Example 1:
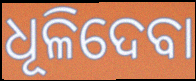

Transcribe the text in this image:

ଧୂଳିଦେବା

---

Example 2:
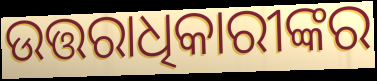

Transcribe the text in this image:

ଉତ୍ତରାଧିକାରୀଙ୍କର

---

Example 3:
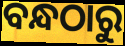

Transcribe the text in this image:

ବନ୍ଧଠାରୁ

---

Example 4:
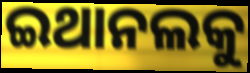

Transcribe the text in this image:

ଇଥାନଲକୁ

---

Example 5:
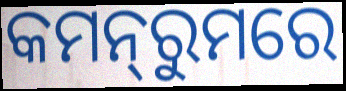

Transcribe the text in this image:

କମନ୍‌ରୁମରେ